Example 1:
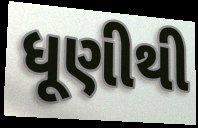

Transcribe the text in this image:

ધૂણીથી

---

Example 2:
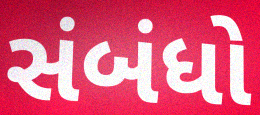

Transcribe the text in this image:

સંબંધો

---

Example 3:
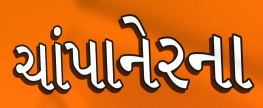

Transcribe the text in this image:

ચાંપાનેરના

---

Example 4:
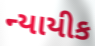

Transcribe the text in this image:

ન્યાયીક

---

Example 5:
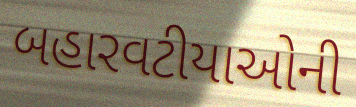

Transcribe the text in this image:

બહારવટીયાઓની